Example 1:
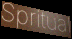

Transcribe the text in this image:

Spritual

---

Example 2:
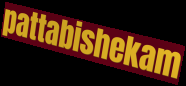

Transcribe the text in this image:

pattabishekam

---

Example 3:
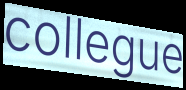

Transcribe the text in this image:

collegue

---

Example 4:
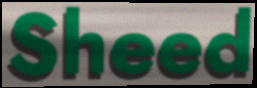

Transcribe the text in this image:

Sheed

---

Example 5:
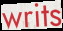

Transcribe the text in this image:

writs